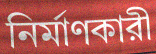
নির্মাণকারী